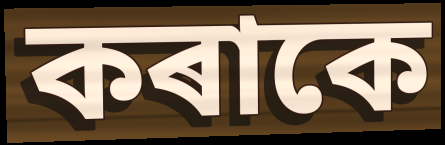
কৰাকে